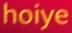
hoiye